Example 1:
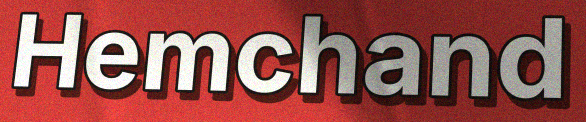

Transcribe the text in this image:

Hemchand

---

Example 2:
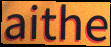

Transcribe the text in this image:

aithe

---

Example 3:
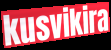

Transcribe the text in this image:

kusvikira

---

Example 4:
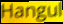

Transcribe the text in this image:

Hangul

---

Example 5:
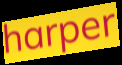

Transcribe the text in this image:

harper